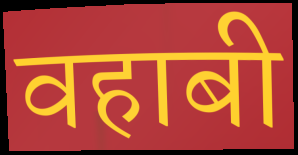
वहाबी